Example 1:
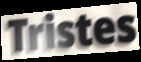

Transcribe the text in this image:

Tristes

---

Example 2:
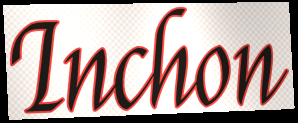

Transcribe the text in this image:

Inchon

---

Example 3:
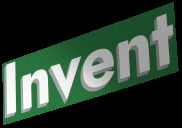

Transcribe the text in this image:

Invent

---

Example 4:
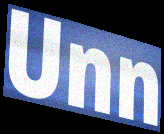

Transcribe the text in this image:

Unn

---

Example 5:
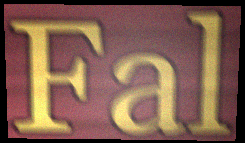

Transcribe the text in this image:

Fal